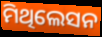
ମିଥିଲେସନ